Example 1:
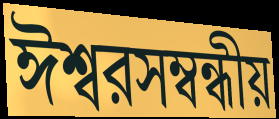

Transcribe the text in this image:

ঈশ্বরসম্বন্ধীয়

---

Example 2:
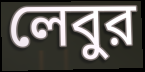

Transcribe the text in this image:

লেবুর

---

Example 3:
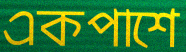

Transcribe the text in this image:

একপাশে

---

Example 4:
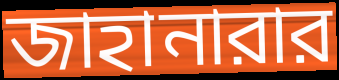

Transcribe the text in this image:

জাহানারার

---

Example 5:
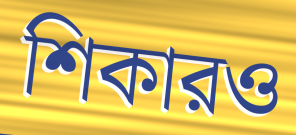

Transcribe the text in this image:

শিকারও